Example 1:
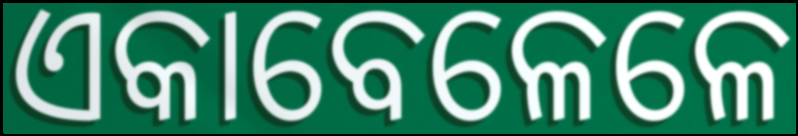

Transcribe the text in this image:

ଏକାବେଳେଳେ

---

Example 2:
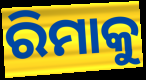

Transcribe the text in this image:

ରିମାକୁ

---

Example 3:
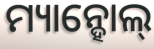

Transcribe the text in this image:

ମ୍ୟାନ୍ହୋଲ୍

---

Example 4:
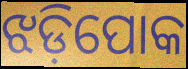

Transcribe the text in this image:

ଝଡ଼ିପୋକ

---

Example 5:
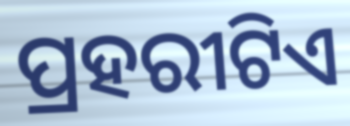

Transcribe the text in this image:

ପ୍ରହରୀଟିଏ